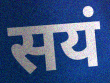
सयं